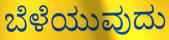
ಬೆಳೆಯುವುದು